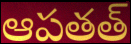
ఆపతత్